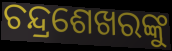
ଚନ୍ଦ୍ରଶେଖରଙ୍କୁ